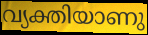
വ്യക്തിയാണു